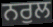
ਨਰੁਲ